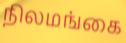
நிலமங்கை